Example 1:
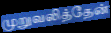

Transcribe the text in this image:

முறுவலித்தேன்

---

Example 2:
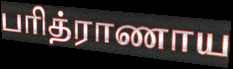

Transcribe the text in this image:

பரித்ராணாய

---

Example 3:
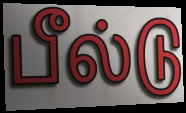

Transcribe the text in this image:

பீல்டு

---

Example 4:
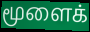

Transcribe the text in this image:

மூளைக்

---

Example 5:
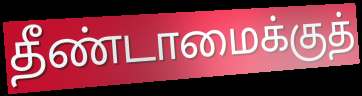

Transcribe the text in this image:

தீண்டாமைக்குத்